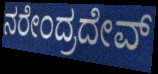
ನರೇಂದ್ರದೇವ್